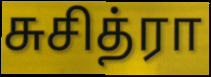
சுசித்ரா